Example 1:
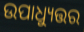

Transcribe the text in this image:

ଉପାଧ୍ୟୁତ୍ତର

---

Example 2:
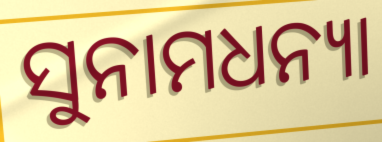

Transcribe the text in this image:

ସୁନାମଧନ୍ୟା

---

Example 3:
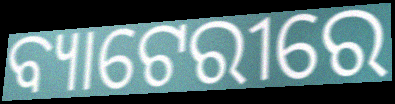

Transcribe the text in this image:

ବ୍ୟାଟେରୀରେ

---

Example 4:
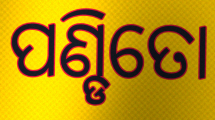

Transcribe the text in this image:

ପଣ୍ଡିତୋ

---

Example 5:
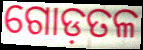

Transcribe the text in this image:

ଗୋଡ଼ତଳ